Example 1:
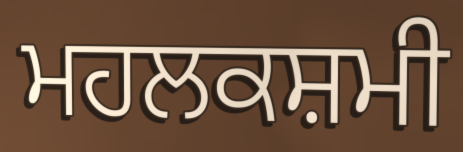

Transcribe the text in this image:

ਮਹਲਕਸ਼ਮੀ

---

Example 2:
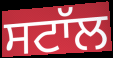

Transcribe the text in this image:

ਸਟਾੱਲ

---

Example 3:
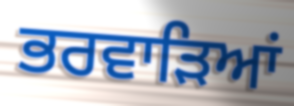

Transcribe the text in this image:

ਭਰਵਾੜਿਆਂ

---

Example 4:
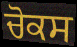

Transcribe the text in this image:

ਚੋਕਸ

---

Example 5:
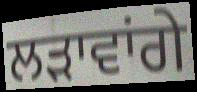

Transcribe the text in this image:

ਲੜਾਵਾਂਗੇ